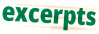
excerpts